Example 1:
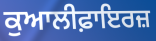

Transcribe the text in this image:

ਕੁਆਲੀਫ਼ਾਇਰਜ਼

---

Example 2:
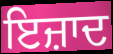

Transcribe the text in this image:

ਇਜ਼ਾਦ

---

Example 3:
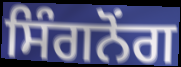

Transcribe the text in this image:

ਸਿੰਗਨੋਂਗ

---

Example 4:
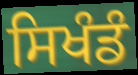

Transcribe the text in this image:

ਸਿਖੰਡੰ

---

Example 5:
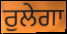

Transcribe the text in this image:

ਰੁਲੇਗਾ